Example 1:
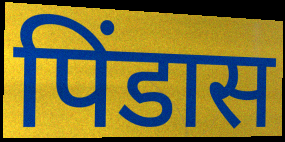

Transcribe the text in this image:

पिंडास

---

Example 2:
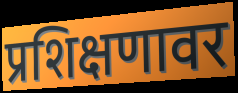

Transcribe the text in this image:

प्रशिक्षणावर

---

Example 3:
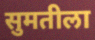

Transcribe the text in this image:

सुमतीला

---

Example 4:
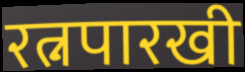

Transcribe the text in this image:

रत्नपारखी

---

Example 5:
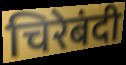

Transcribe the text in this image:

चिरेबंदी